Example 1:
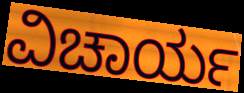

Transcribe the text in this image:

ವಿಚಾರ್ಯ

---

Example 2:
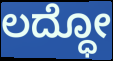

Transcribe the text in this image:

ಲದ್ಧೋ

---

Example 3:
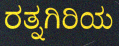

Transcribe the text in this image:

ರತ್ನಗಿರಿಯ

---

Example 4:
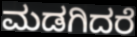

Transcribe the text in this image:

ಮಡಗಿದರೆ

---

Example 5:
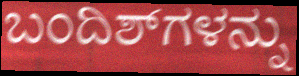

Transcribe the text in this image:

ಬಂದಿಶ್‌ಗಳನ್ನು